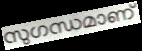
സുഗന്ധമാണ്